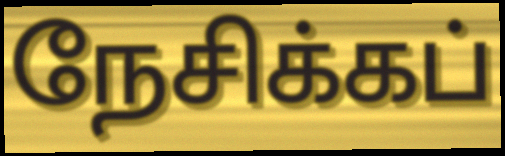
நேசிக்கப்